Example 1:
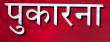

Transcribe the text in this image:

पुकारना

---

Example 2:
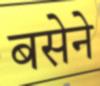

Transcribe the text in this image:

बसेने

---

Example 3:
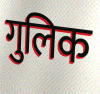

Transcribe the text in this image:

गुलिक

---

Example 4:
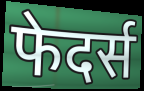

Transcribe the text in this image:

फेदर्स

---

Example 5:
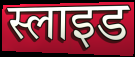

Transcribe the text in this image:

स्लाइड